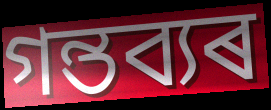
গন্তব্যৰ